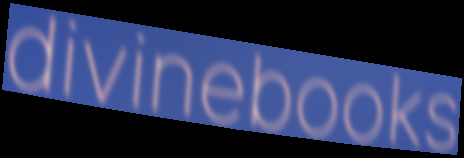
divinebooks